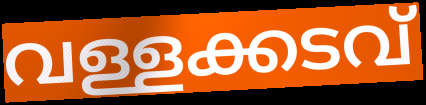
വള്ളക്കടവ്